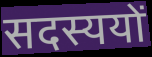
सदस्ययों